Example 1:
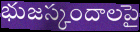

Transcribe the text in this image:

భుజస్కందాలపై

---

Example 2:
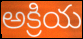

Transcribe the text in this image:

అక్రియ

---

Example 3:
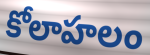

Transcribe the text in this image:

కోలాహలం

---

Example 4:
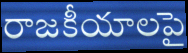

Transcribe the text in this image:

రాజకీయాలపై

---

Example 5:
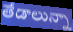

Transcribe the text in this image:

తేడాలున్నా